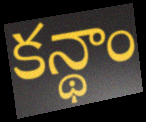
కన్థాం